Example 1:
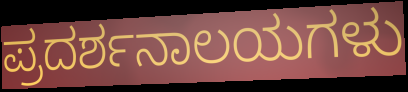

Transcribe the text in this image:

ಪ್ರದರ್ಶನಾಲಯಗಳು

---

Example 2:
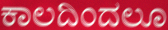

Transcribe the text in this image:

ಕಾಲದಿಂದಲೂ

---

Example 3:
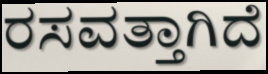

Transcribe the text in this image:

ರಸವತ್ತಾಗಿದೆ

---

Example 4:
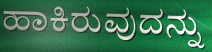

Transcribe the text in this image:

ಹಾಕಿರುವುದನ್ನು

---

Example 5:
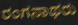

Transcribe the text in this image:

ರಂಗನಾಥರು